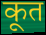
कूत